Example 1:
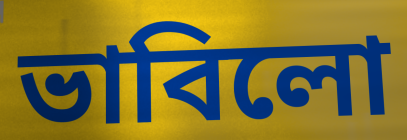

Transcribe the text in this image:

ভাবিলো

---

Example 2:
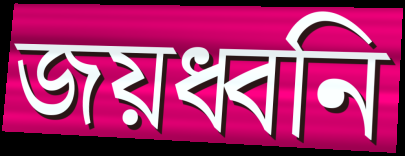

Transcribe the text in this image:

জয়ধ্বনি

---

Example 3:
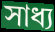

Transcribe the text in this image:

সাধ্য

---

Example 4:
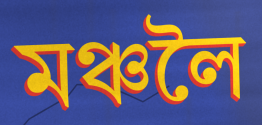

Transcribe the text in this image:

মঞ্চলৈ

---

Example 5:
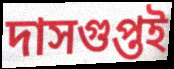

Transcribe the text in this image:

দাসগুপ্তই